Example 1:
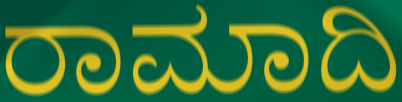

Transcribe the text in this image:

ರಾಮಾದಿ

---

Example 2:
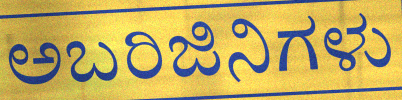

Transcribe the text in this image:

ಅಬರಿಜಿನಿಗಳು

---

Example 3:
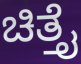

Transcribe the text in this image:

ಚಿತ್ತೈ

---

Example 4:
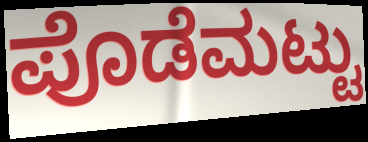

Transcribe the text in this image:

ಪೊಡೆಮಟ್ಟು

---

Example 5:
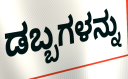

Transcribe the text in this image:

ಡಬ್ಬಗಳನ್ನು